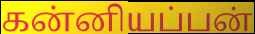
கன்னியப்பன்